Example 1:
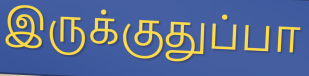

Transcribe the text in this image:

இருக்குதுப்பா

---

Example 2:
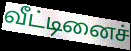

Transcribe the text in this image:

வீட்டினைச்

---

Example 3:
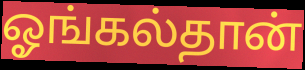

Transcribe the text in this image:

ஓங்கல்தான்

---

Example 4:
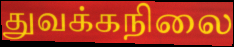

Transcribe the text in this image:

துவக்கநிலை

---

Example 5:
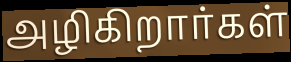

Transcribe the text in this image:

அழிகிறார்கள்